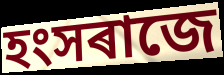
হংসৰাজে